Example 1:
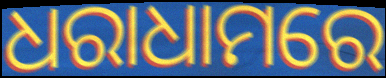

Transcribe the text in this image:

ଧରାଧାମରେ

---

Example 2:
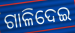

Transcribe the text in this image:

ଗାଳିଦେଇ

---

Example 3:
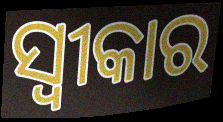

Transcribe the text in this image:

ସ୍ଵୀକାର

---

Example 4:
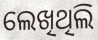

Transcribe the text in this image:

ଲେଖିଥିଲି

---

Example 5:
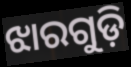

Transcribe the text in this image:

ଝାରଗୁଡ଼ି